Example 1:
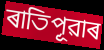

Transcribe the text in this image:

ৰাতিপূৱাৰ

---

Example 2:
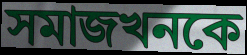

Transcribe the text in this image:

সমাজখনকে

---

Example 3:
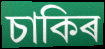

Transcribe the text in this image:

চাকিৰ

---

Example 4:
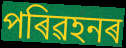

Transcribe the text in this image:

পৰিৱহনৰ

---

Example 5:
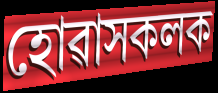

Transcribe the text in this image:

হোৱাসকলক